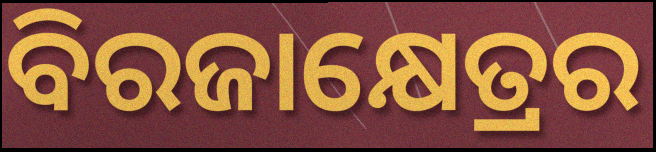
ବିରଜାକ୍ଷେତ୍ରର